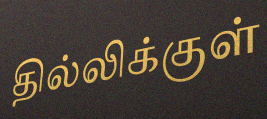
தில்லிக்குள்